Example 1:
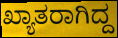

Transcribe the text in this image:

ಖ್ಯಾತರಾಗಿದ್ದ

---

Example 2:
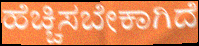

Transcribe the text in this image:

ಹೆಚ್ಚಿಸಬೇಕಾಗಿದೆ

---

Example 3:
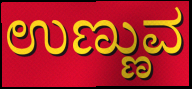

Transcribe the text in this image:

ಉಣ್ಣುವ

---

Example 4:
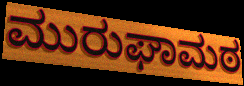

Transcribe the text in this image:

ಮುರುಘಾಮಠ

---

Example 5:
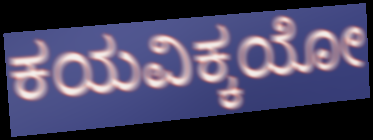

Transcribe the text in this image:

ಕಯವಿಕ್ಕಯೋ